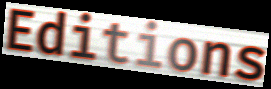
Editions